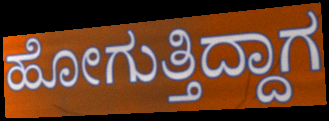
ಹೋಗುತ್ತಿದ್ದಾಗ